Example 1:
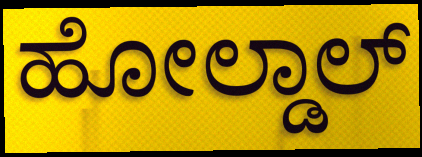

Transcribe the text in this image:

ಹೋಲ್ಡಾಲ್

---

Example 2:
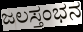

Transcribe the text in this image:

ಜಲಸ್ತಂಭನ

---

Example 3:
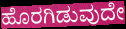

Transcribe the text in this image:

ಹೊರಗಿಡುವುದೇ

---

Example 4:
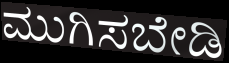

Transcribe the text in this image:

ಮುಗಿಸಬೇಡಿ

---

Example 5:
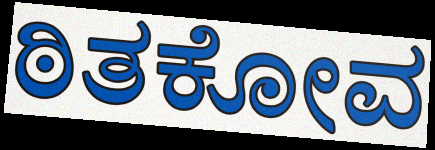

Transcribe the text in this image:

ಠಿತಕೋವ